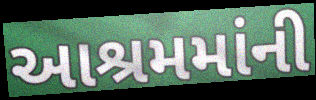
આશ્રમમાંની